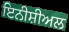
ਇਨੀਸ਼ੀਅਲ